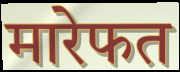
मारेफत